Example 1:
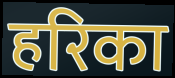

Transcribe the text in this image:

हरिका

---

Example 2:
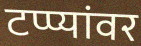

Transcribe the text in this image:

टप्प्यांवर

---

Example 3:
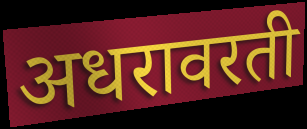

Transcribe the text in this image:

अधरावरती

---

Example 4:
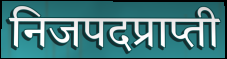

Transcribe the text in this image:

निजपदप्राप्ती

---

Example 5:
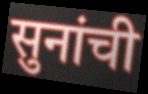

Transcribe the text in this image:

सुनांची